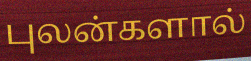
புலன்களால்